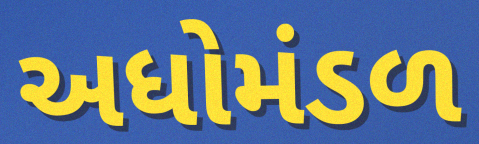
અધોમંડળ